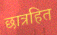
छात्रहित